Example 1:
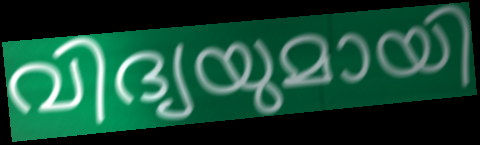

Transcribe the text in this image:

വിദ്യയുമായി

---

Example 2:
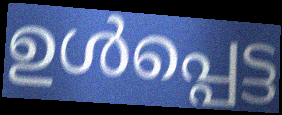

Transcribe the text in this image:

ഉൾപ്പെട്ട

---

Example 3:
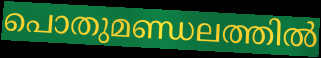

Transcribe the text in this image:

പൊതുമണ്ഡലത്തിൽ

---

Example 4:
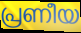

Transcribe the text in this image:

പ്രണീയ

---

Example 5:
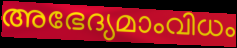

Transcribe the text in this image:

അഭേദ്യമാംവിധം